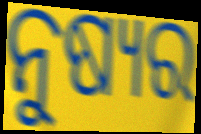
ନୁଷ୍ୟର